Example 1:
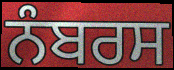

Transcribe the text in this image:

ਨੰਬਰਸ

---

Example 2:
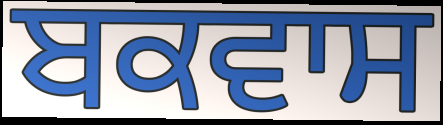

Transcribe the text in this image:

ਬਕਵਾਸ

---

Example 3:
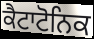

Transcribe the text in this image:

ਕੈਟਾਟੋਨਿਕ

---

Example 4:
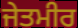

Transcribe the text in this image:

ਜੇਤਮੀਰ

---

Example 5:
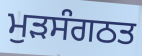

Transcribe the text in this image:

ਮੁੜਸੰਗਠਤ